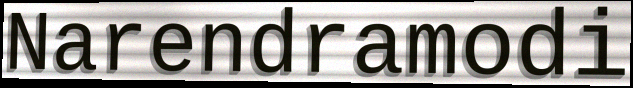
Narendramodi